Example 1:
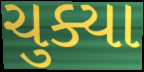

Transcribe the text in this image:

ચુક્યા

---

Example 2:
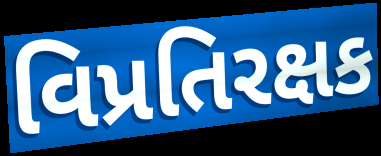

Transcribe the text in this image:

વિપ્રતિરક્ષક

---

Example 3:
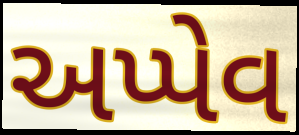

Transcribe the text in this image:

અપ્પેવ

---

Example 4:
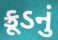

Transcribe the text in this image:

ક્રૂડનું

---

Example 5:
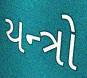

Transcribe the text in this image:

યન્ત્રો